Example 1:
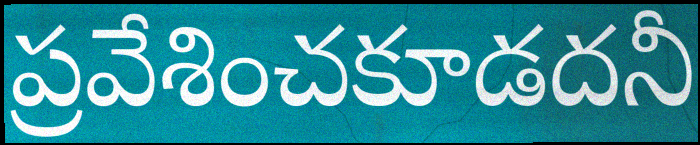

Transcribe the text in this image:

ప్రవేశించకూడదనీ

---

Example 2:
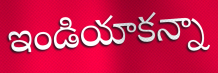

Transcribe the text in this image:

ఇండియాకన్నా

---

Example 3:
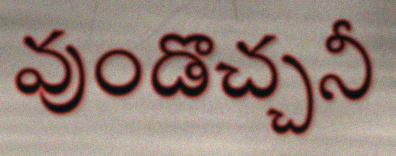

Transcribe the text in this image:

వుండొచ్చనీ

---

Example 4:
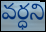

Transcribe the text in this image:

వర్ధని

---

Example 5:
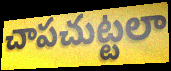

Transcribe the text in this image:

చాపచుట్టలా